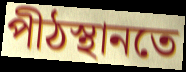
পীঠস্থানতে